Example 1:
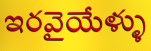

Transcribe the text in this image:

ఇరవైయేళ్ళు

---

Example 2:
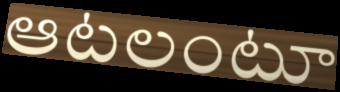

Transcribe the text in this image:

ఆటలంటూ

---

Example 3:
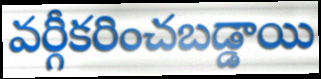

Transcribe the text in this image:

వర్గీకరించబడ్డాయి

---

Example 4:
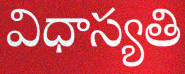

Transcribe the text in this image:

విధాస్యతి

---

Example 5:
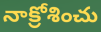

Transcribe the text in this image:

నాక్రోశించు